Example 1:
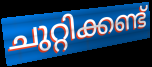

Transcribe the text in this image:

ചുറ്റിക്കണ്ട്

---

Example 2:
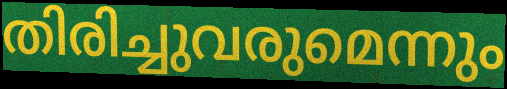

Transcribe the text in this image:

തിരിച്ചുവരുമെന്നും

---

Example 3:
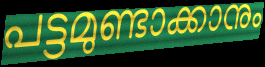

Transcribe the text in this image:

പട്ടമുണ്ടാക്കാനും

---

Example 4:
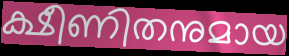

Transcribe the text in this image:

ക്ഷീണിതനുമായ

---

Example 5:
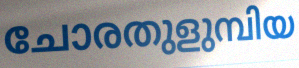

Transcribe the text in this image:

ചോരതുളുമ്പിയ